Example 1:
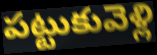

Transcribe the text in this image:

పట్టుకువెళ్లి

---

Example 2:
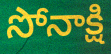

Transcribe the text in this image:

సోనాక్షి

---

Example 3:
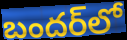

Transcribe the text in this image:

బందర్‌లో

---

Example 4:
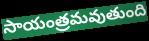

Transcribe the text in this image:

సాయంత్రమవుతుంది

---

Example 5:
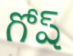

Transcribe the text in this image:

గోష్